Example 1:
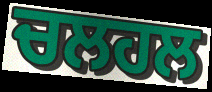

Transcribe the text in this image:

ਚਲਹਲ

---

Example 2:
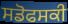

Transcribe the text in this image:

ਸਡੋਫਸਕੀ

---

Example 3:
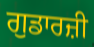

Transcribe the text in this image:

ਗੁਡਾਰਜ਼ੀ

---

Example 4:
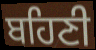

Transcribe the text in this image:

ਬਹਿਣੀ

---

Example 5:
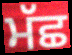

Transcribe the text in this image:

ਮੱਛ